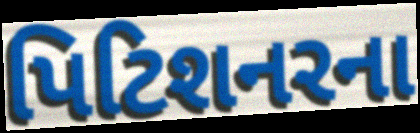
પિટિશનરના